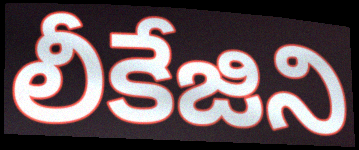
లీకేజిని